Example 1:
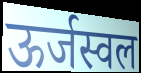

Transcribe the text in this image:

ऊर्जस्वल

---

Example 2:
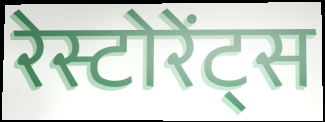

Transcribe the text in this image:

रेस्‍टोरेंट्स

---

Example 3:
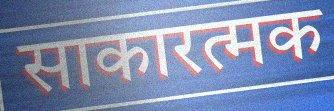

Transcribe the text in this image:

साकारत्मक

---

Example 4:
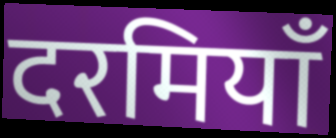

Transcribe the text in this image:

दरमियाँ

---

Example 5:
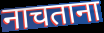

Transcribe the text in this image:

नाचताना